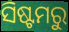
ସିଷ୍ଟମରୁ